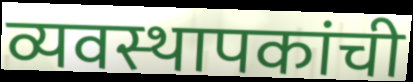
व्यवस्थापकांची